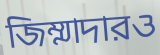
জিম্মাদারও